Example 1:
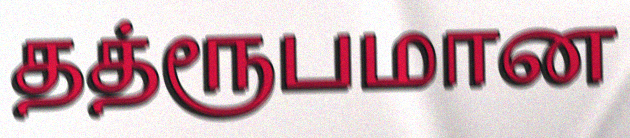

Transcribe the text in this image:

தத்ரூபமான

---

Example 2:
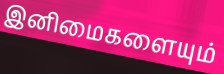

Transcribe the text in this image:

இனிமைகளையும்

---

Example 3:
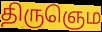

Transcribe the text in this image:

திருஞெம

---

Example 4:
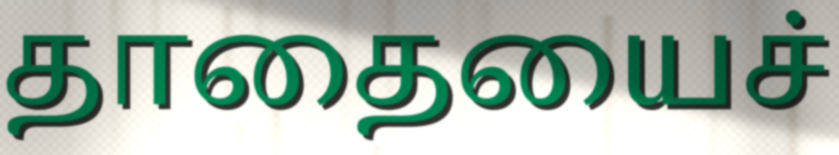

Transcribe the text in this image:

தாதையைச்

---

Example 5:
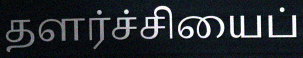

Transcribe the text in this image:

தளர்ச்சியைப்